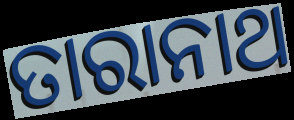
ତାରାନାଥ